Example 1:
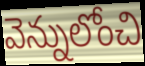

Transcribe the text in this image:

వెన్నులోంచి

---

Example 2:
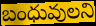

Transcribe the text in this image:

బంధువులని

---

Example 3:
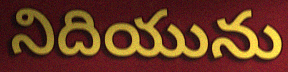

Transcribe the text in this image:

నిదియును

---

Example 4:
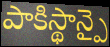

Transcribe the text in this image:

పాకిస్థాన్పై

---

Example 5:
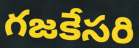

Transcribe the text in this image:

గజకేసరి